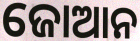
ଜୋଆନ